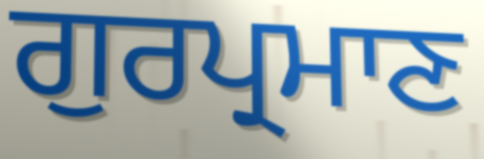
ਗੁਰਪ੍ਰਮਾਣ